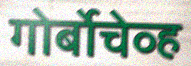
गोर्बोचेव्ह